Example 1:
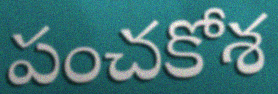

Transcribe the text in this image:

పంచకోశ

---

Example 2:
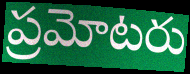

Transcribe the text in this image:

ప్రమోటరు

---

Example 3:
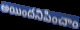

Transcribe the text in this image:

అయిందనిపించాం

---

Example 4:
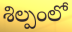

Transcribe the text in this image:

శిల్పంలో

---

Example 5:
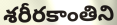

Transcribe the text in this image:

శరీరకాంతిని